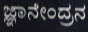
ಜ್ಞಾನೇಂದ್ರನ